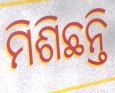
ମିଶିଛନ୍ତି